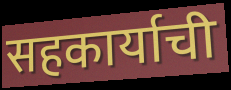
सहकार्याची